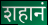
शहानं